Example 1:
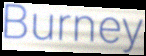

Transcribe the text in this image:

Burney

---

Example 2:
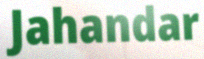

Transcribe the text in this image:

Jahandar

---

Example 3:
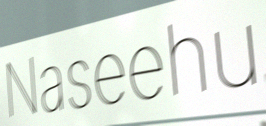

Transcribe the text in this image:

Naseehu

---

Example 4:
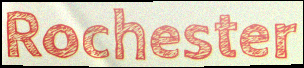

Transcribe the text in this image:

Rochester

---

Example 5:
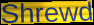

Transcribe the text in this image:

Shrewd